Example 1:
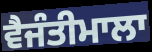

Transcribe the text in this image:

ਵੈਜੰਤੀਮਾਲਾ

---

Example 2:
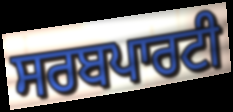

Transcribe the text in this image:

ਸਰਬਪਾਰਟੀ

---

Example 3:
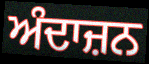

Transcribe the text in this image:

ਅੰਦਾਜ਼ਨ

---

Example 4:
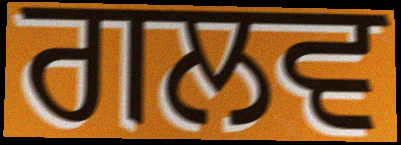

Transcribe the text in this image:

ਗਲਵ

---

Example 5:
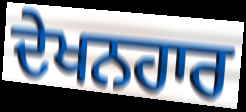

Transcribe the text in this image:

ਦੇਖਨਹਾਰ